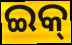
ଇକ୍